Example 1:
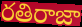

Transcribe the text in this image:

రతిరాజా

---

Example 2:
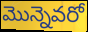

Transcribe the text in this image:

మొన్నెవరో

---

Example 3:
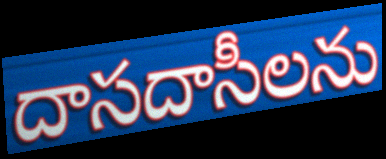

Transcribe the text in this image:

దాసదాసీలను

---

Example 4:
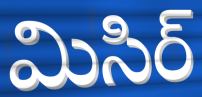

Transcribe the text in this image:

మిసిర్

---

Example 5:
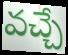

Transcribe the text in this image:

వచ్చే